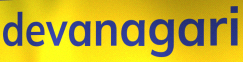
devanagari